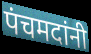
पंचमदांनी